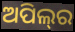
ଅପିଲ୍‍ର